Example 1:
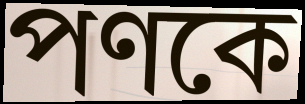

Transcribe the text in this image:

পণকে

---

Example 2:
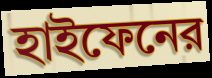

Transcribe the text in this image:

হাইফেনের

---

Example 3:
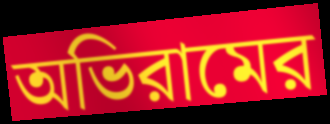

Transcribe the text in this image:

অভিরামের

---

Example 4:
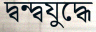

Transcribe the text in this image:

দ্বন্দ্বযুদ্ধে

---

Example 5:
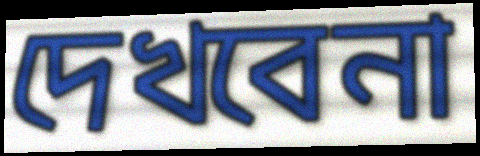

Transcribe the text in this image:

দেখবেনা